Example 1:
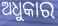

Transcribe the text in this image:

ଅଧୁକାର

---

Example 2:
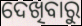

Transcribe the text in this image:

ଦେଖିବାରୁ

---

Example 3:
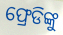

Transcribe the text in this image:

ଫ୍ରେଡିଙ୍କୁ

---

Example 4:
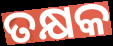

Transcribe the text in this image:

ତକ୍ଷକ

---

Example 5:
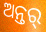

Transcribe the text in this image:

ଅନ୍ତର୍